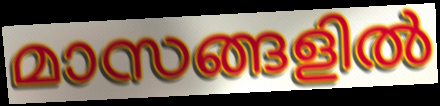
മാസങ്ങളിൽ